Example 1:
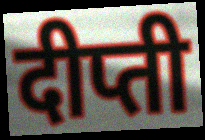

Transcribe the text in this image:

दीप्ती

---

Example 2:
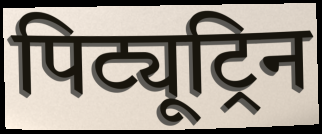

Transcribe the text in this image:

पिट्यूट्रिन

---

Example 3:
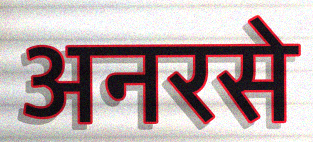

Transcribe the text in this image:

अनरसे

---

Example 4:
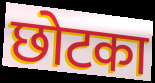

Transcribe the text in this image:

छोटका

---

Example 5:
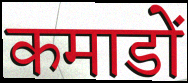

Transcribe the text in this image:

कमाडों